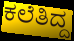
ಕಲೆತಿದ್ದ